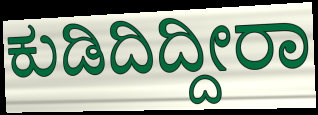
ಕುಡಿದಿದ್ದೀರಾ